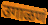
उगाळणं